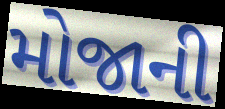
મોજાની